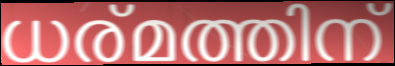
ധര്മത്തിന്